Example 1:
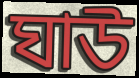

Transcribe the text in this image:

ঘাউ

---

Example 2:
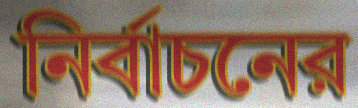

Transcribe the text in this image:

নির্বাচনের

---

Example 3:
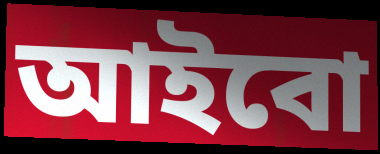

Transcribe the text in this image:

আইবো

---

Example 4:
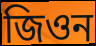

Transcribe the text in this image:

জিওন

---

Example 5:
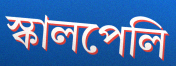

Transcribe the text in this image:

স্কালপেলি